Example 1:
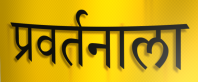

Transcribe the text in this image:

प्रवर्तनाला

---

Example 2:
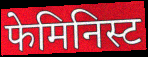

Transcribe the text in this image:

फेमिनिस्ट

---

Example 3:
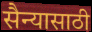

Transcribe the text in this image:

सैन्यासाठी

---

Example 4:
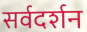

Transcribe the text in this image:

सर्वदर्शन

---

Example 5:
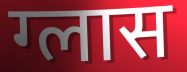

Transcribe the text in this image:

ग्लास